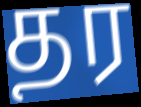
தர